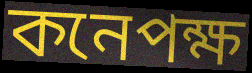
কনেপক্ষ